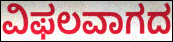
ವಿಫಲವಾಗದ